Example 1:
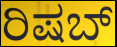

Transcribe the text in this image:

ರಿಷಬ್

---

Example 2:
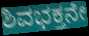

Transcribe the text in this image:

ಶಿವಭಕ್ತನೇ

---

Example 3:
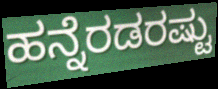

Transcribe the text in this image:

ಹನ್ನೆರಡರಷ್ಟು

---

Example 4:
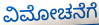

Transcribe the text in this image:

ವಿಮೋಚನೆಗೆ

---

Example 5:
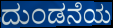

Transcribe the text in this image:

ದುಂಡನೆಯ